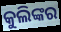
କୁଲିଙ୍କର